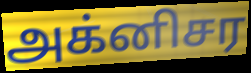
அக்னிசர